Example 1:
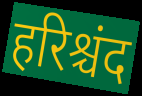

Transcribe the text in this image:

हरिश्चंद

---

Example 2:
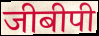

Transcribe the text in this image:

जीबीपी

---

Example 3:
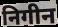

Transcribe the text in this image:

निगीन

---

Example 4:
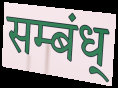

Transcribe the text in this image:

सम्बंध्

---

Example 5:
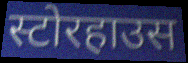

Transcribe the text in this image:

स्टोरहाउस